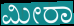
ಮೀರಾ